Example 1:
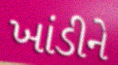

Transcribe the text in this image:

ખાંડીને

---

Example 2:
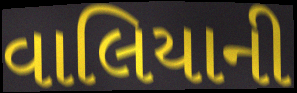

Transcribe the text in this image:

વાલિયાની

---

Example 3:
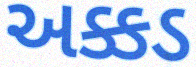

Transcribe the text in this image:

અક્કડ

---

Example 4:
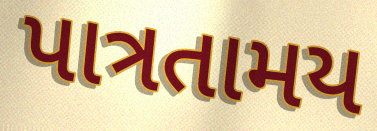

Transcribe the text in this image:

પાત્રતામય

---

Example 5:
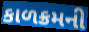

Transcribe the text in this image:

કાળક્રમની